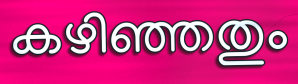
കഴിഞ്ഞതും